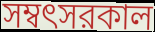
সম্বৎসরকাল